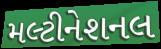
મલ્ટીનેશનલ